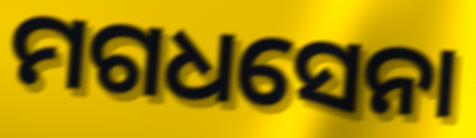
ମଗଧସେନା